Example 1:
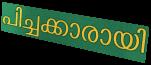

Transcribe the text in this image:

പിച്ചക്കാരായി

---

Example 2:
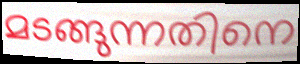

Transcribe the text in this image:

മടങ്ങുന്നതിനെ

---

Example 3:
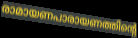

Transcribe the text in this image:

രാമായണപാരായണത്തിന്റെ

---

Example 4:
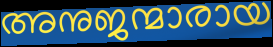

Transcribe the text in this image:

അനുജന്മാരായ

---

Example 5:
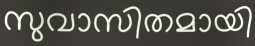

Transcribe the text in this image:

സുവാസിതമായി